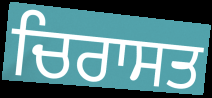
ਚਿਰਾਸਤ